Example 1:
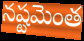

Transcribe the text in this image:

నష్టమెంత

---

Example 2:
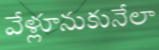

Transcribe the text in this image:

వేళ్లూనుకునేలా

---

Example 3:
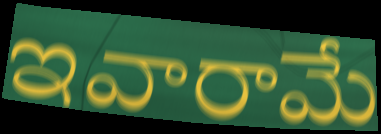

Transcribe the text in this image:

ఇవారామే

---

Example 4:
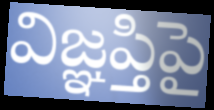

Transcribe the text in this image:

విజ్ఞప్తిపై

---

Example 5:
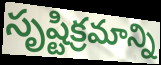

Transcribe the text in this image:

సృష్టిక్రమాన్ని